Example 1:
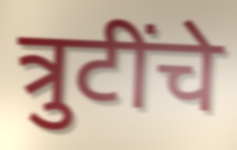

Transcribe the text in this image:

त्रुटींचे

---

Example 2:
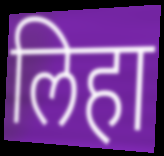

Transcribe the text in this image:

लिहा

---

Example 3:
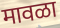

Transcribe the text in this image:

मावळा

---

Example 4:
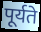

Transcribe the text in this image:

पूर्यते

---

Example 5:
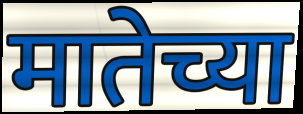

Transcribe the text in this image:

मातेच्या